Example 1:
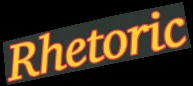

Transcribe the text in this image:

Rhetoric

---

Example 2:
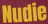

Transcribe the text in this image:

Nudie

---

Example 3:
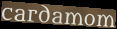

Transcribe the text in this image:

cardamom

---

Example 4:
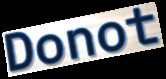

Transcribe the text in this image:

Donot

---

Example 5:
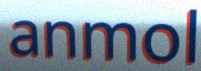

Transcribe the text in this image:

anmol